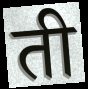
ती